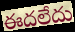
ఈదలేదు